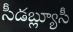
సీడబ్ల్యూసీ